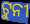
ଟୁନୀ